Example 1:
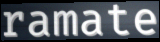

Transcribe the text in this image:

ramate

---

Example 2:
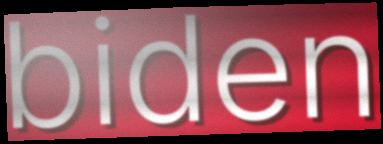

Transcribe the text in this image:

biden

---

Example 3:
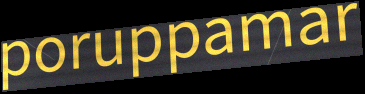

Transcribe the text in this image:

poruppamar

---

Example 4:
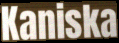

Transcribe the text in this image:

Kaniska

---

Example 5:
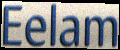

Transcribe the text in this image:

Eelam